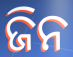
ଜିନ